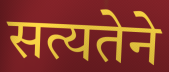
सत्यतेने